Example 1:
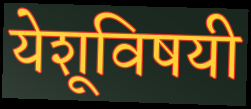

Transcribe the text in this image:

येशूविषयी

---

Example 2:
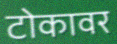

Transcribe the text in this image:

टोकावर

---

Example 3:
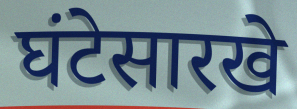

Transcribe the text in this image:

घंटेसारखे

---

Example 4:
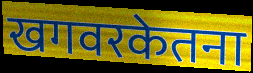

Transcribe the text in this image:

खगवरकेतना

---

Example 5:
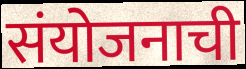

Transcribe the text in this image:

संयोजनाची